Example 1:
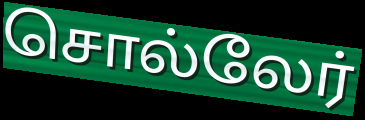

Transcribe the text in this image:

சொல்லேர்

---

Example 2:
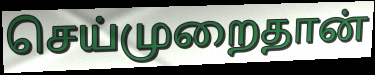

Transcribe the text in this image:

செய்முறைதான்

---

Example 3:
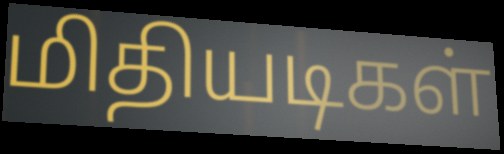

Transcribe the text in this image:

மிதியடிகள்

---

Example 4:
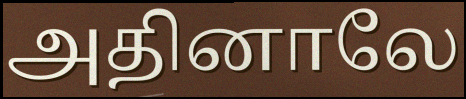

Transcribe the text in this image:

அதினாலே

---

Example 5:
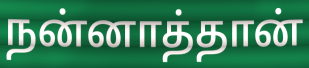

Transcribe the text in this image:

நன்னாத்தான்